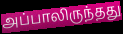
அப்பாலிருந்தது